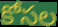
కోసల